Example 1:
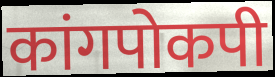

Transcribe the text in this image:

कांगपोकपी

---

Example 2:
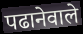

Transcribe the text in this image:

पढानेवाले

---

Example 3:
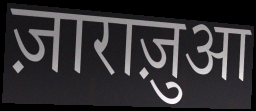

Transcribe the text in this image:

ज़ाराज़ुआ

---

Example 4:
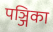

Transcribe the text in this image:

पञ्जिका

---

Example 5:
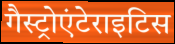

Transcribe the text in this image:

गैस्ट्रोएंटेराइटिस